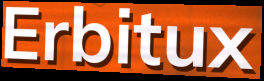
Erbitux